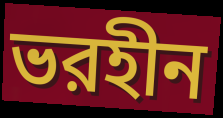
ভরহীন